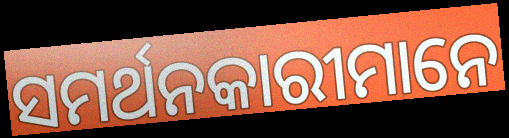
ସମର୍ଥନକାରୀମାନେ